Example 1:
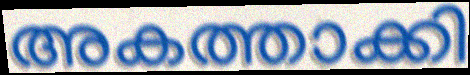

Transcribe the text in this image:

അകത്താക്കി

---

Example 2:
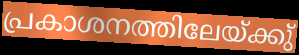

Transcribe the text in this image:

പ്രകാശനത്തിലേയ്ക്കു്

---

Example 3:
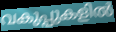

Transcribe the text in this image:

വകുപ്പുകളിൽ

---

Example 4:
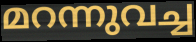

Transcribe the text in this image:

മറന്നുവച്ച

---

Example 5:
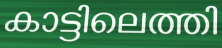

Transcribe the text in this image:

കാട്ടിലെത്തി